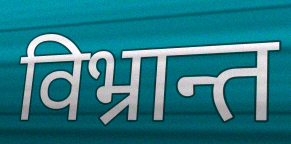
विभ्रान्त